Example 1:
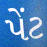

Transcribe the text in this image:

પેંટ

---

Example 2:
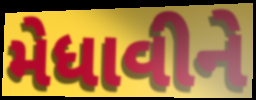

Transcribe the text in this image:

મેધાવીને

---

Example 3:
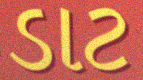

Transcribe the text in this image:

ડાટ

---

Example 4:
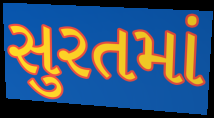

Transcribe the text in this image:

સુરતમાં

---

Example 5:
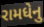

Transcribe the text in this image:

રામધેનુ